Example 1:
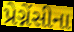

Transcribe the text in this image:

પ્રેગ્નેંસીના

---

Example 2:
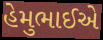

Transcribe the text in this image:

હેમુભાઈએ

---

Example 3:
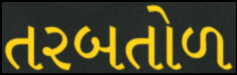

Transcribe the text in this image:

તરબતોળ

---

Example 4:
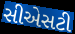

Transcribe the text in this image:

સીએસટી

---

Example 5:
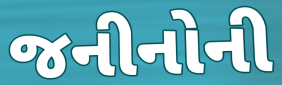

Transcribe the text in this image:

જનીનોની